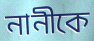
নানীকে